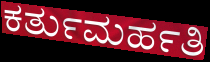
ಕರ್ತುಮರ್ಹತಿ